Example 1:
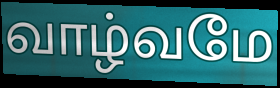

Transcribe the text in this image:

வாழ்வமே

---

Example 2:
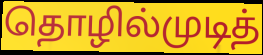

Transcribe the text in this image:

தொழில்முடித்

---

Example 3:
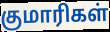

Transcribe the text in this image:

குமாரிகள்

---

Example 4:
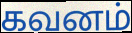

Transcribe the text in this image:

கவனம்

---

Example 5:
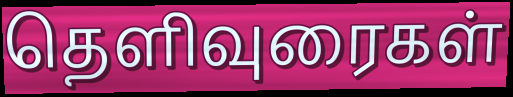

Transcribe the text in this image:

தெளிவுரைகள்